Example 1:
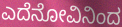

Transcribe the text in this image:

ಎದೆನೋವಿನಿಂದ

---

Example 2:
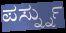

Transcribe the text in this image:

ಪರ್ಸ್ನ್ನು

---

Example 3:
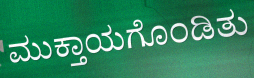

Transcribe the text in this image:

ಮುಕ್ತಾಯಗೊಂಡಿತು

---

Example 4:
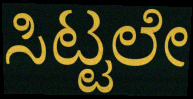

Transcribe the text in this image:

ಸಿಟ್ಟಲೇ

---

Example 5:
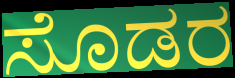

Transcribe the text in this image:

ಸೊಡರ